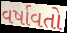
વર્ષાવતો